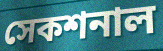
সেকশনাল